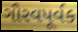
ગૌરવપૂર્વક